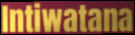
Intiwatana